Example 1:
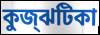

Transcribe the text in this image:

কুজ্‌ঝটিকা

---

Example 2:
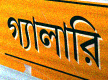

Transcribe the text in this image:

গ্যালারি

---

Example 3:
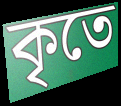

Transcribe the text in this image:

কৃতে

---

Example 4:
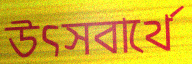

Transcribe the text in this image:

উৎসবার্থে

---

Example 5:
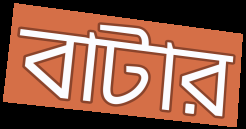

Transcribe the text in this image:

বাটার